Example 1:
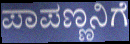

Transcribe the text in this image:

ಪಾಪಣ್ಣನಿಗೆ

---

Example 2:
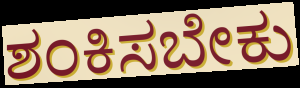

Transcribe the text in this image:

ಶಂಕಿಸಬೇಕು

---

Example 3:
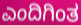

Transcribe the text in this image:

ಎಂದಿಗಿಂತ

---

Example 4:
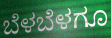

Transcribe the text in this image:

ಬೆಳಬೆಳಗೂ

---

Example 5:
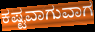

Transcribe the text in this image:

ಕಷ್ಟವಾಗುವಾಗ